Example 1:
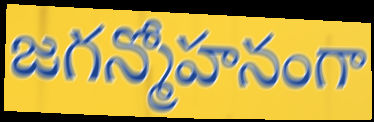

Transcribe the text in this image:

జగన్మోహనంగా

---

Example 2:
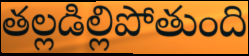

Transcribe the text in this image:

తల్లడిల్లిపోతుంది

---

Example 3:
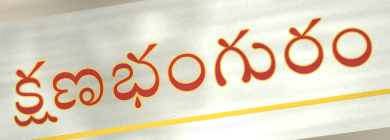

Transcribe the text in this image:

క్షణభంగురం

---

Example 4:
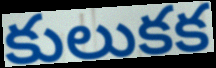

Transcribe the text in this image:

కులుకక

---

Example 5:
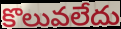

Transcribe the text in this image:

కొలువలేదు